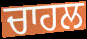
ਚਾਹਲ